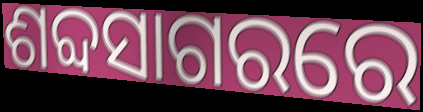
ଶବ୍ଦସାଗରରେ